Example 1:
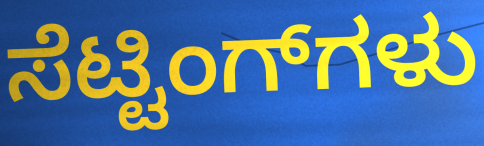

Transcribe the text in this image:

ಸೆಟ್ಟಿಂಗ್‌ಗಳು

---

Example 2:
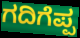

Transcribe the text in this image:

ಗದಿಗೆಪ್ಪ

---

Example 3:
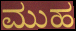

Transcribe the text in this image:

ಮುಹ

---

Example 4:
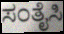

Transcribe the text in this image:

ಸಂತೈಸಿ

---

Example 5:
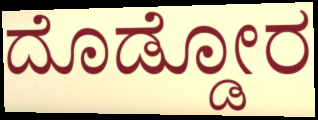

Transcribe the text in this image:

ದೊಡ್ಡೋರ